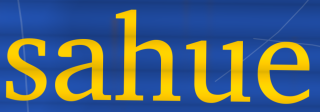
sahue